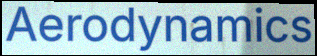
Aerodynamics